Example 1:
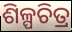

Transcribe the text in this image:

ଶିଳ୍ପଚିତ୍ର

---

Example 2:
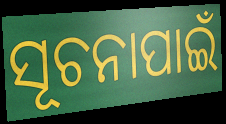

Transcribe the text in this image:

ସୂଚନାପାଇଁ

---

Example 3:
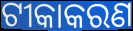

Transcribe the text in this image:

ଟୀକାକରଣ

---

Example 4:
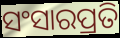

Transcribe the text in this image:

ସଂସାରପ୍ରତି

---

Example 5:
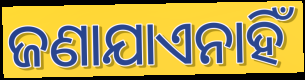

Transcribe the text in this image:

ଜଣାଯାଏନାହିଁ